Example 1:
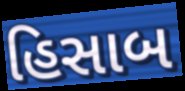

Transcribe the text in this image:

હિસાબ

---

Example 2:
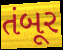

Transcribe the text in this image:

તંબૂર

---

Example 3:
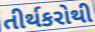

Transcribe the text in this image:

તીર્થકરોથી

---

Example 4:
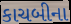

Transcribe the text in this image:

કાચબીના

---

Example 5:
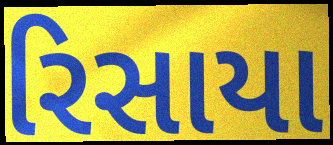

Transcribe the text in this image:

રિસાયા